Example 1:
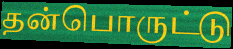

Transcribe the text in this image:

தன்பொருட்டு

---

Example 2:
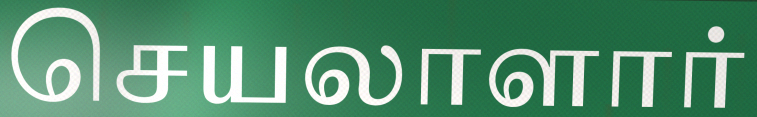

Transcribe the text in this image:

செயலாளார்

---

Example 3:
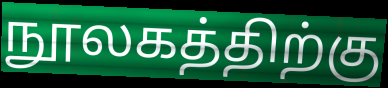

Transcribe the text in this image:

நூலகத்திற்கு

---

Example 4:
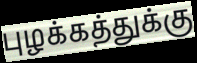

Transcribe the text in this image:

புழக்கத்துக்கு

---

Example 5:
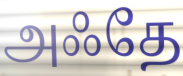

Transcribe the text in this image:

அஃதே